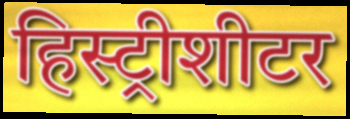
हिस्‍ट्रीशीटर